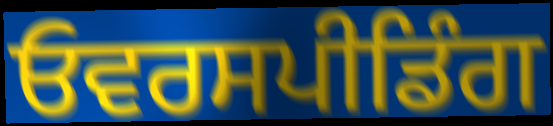
ਓਵਰਸਪੀਡਿੰਗ